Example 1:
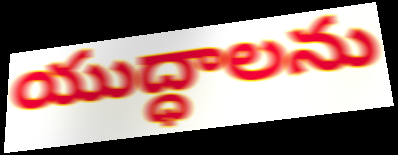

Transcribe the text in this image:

యుద్ధాలను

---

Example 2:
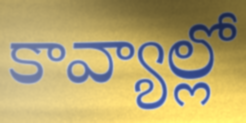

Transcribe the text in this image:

కావ్యాల్లో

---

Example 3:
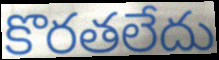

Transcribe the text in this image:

కొరతలేదు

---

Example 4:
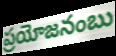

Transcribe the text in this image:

ప్రయోజనంబు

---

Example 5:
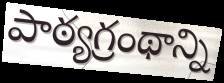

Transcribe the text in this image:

పాఠ్యగ్రంథాన్ని